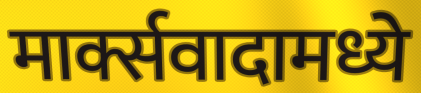
मार्क्सवादामध्ये